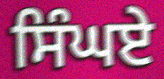
ਸਿੰਘਏ